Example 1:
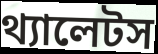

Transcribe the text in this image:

থ্যালেটস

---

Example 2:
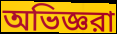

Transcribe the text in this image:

অভিজ্ঞরা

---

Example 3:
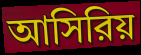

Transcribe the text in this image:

আসিরিয়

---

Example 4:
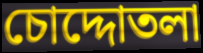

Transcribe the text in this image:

চোদ্দোতলা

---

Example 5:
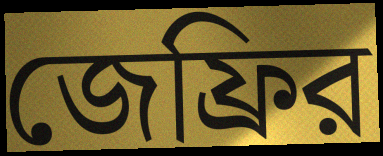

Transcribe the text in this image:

জেফ্রির